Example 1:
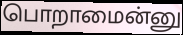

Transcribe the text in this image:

பொறாமைன்னு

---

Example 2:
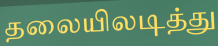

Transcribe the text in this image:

தலையிலடித்து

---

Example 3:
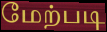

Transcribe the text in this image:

மேற்படி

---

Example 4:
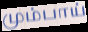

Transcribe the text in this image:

மும்பாய்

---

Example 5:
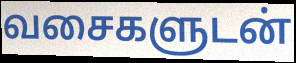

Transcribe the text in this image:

வசைகளுடன்